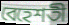
বেহেশতী